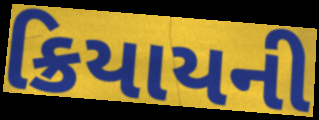
ક્રિયાયની